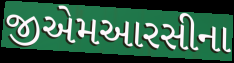
જીએમઆરસીના